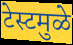
टेस्टमुळे